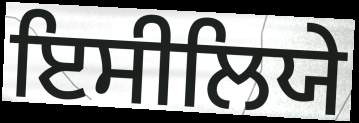
ਇਸੀਲਿਯੇ